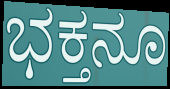
ಭಕ್ತನೂ